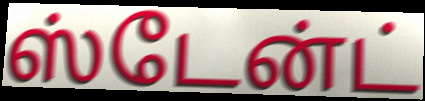
ஸ்டேன்ட்